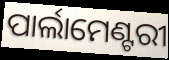
ପାର୍ଲାମେଣ୍ଟରୀ